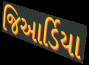
જિઆર્ડિયા